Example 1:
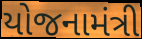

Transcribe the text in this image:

યોજનામંત્રી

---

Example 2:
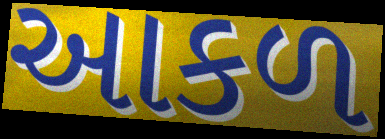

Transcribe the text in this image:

આકળ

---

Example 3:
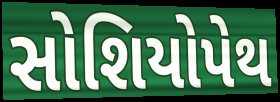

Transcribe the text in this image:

સોશિયોપેથ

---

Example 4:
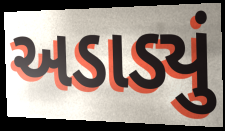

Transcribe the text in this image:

અડાડ્યું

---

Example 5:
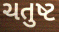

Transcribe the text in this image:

ચતુષ્ટ